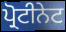
ਪ੍ਰੋਟੀਨੇਟ